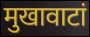
मुखावाटां